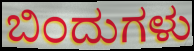
ಬಿಂದುಗಳು